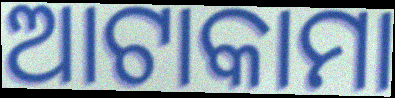
ଆଟାକାମା